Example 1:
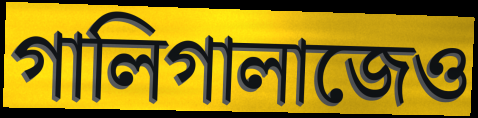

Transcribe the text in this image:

গালিগালাজেও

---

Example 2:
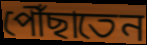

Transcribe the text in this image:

পৌঁছাতেন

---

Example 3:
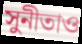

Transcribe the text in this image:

সুনীতাও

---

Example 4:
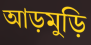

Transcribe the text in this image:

আড়মুড়ি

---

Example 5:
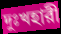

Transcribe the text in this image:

দুঃখহারী